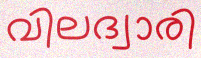
വിലദ്വാരി